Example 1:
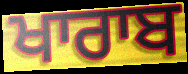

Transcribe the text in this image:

ਖਾਰਾਬ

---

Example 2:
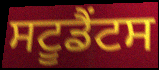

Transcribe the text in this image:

ਸਟੂਡੈਂਟਸ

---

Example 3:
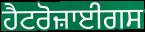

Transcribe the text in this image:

ਹੈਟਰੋਜ਼ਾਈਗਸ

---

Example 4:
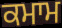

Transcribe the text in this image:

ਕਮਾਮ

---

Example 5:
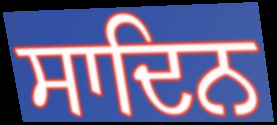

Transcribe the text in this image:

ਸਾਦਿਨ